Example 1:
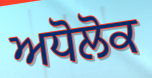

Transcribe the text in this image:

ਅਧੋਲੋਕ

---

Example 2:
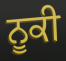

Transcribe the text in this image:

ਨੂਕੀ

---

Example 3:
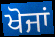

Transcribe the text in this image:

ਖੋਜਾਂ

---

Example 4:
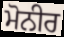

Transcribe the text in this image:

ਮੋਨੀਰ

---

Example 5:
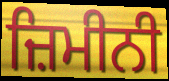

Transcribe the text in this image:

ਜ਼ਿਮੀਨੀ